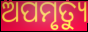
ଅପମୃତ୍ୟୁ